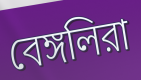
বেঙ্গলিরা